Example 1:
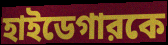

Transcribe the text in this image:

হাইডেগারকে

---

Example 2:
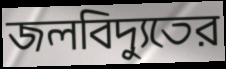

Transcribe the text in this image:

জলবিদ্যুতের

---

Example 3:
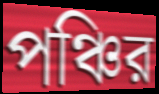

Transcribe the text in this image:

পঞ্চির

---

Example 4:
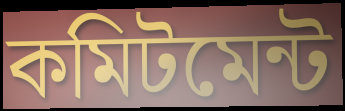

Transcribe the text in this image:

কমিটমেন্ট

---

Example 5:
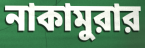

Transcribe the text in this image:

নাকামুরার